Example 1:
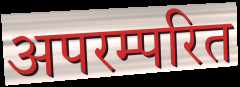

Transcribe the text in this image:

अपरम्परित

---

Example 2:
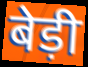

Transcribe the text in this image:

बेड़ी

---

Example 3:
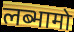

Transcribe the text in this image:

लब्भामो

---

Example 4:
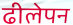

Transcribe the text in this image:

ढीलेपन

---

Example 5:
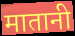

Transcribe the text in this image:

मातानी